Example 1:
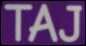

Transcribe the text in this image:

TAJ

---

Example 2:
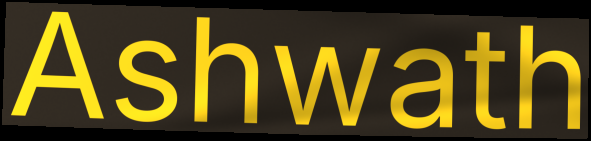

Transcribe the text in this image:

Ashwath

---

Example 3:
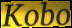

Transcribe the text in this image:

Kobo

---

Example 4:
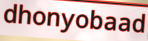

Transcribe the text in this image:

dhonyobaad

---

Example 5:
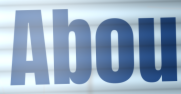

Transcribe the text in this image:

Abou